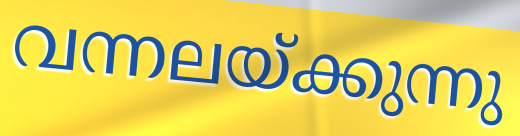
വന്നലയ്ക്കുന്നു